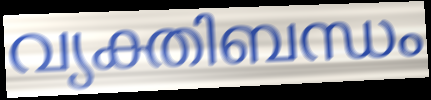
വ്യക്തിബന്ധം